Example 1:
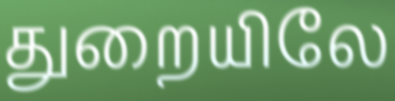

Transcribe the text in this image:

துறையிலே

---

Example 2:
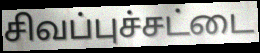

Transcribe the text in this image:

சிவப்புச்சட்டை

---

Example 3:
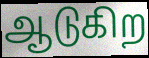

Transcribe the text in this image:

ஆடுகிற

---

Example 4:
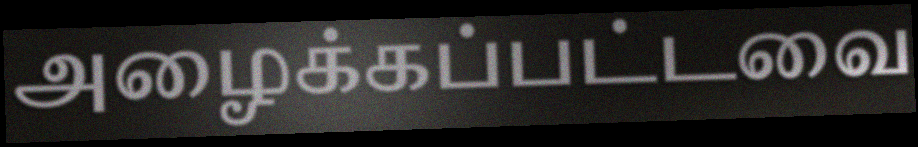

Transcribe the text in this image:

அழைக்கப்பட்டவை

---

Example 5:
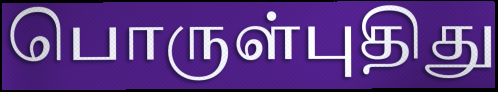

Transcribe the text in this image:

பொருள்புதிது